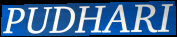
PUDHARI